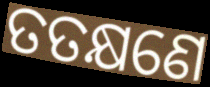
ତତକ୍ଷଣେ